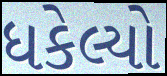
ધકેલ્યો